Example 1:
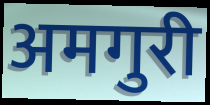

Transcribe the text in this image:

अमगुरी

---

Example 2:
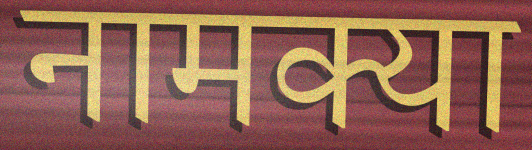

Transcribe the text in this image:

नामक्या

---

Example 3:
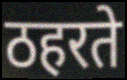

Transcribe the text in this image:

ठहरते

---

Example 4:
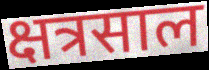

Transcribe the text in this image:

क्षत्रसाल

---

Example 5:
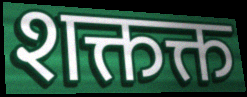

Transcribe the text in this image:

शक्तक्त